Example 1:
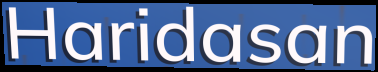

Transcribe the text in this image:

Haridasan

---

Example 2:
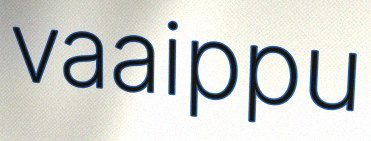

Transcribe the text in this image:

vaaippu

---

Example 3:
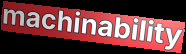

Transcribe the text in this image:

machinability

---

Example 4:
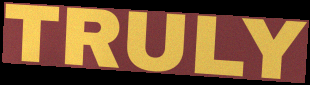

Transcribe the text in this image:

TRULY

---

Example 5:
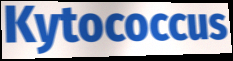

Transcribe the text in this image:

Kytococcus